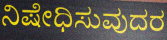
ನಿಷೇಧಿಸುವುದರ